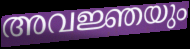
അവജ്ഞയും